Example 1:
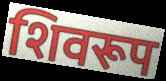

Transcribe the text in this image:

शिवरूप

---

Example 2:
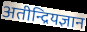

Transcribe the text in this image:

अतीन्द्रियज्ञान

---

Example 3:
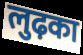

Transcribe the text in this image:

लुढ़का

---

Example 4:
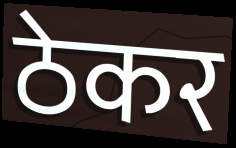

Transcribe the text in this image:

ठेकर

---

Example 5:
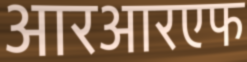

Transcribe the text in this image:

आरआरएफ